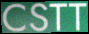
CSTT